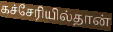
கச்சேரியில்தான்